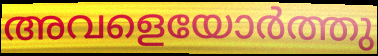
അവളെയോർത്തു